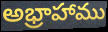
అభ్రాహాము